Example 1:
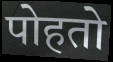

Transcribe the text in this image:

पोहतो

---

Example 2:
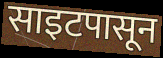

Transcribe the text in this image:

साइटपासून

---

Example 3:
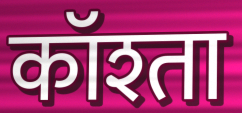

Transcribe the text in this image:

कॉश्ता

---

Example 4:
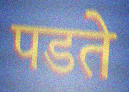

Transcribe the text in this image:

पडते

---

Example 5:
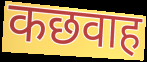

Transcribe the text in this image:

कछवाह